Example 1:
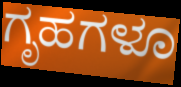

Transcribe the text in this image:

ಗೃಹಗಳೂ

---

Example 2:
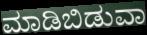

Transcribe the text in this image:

ಮಾಡಿಬಿಡುವಾ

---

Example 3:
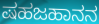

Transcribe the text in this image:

ಷಹಜಹಾನನ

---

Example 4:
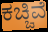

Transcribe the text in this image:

ಕಚ್ಚಿವೆ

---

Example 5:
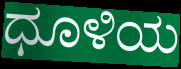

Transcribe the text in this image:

ಧೂಳಿಯ